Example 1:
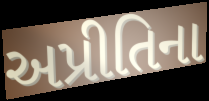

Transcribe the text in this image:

અપ્રીતિના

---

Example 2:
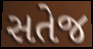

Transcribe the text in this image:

સતેજ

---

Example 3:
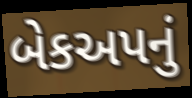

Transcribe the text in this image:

બેકઅપનું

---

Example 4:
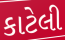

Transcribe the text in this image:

કાટેલી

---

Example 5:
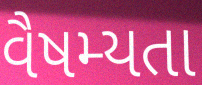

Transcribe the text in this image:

વૈષમ્યતા